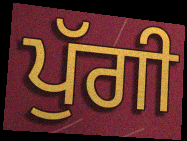
ਪੁੱਗੀ